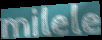
milele